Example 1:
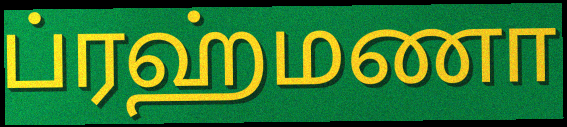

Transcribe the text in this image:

ப்ரஹ்மணா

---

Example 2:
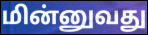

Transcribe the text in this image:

மின்னுவது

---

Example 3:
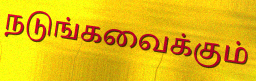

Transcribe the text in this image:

நடுங்கவைக்கும்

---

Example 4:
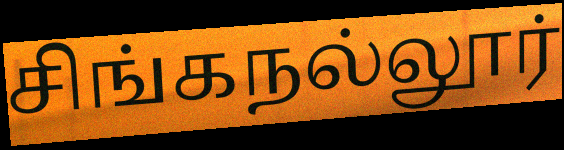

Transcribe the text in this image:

சிங்கநல்லூர்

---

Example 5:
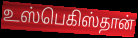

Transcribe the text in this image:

உஸ்பெகிஸ்தான்